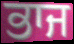
ਭਾਜ